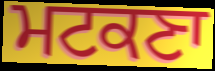
ਮਟਕਣਾ